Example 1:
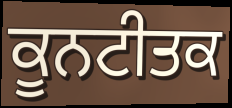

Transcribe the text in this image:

ਕੂਨਟੀਤਕ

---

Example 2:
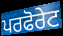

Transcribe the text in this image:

ਪਰਫੋਰੇਟ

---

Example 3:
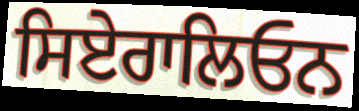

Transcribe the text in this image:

ਸਿਏਰਾਲਿਓਨ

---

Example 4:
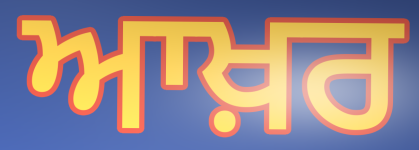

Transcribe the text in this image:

ਆਖ਼ਰ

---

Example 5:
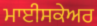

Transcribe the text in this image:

ਮਾਈਸਕੇਅਰ